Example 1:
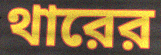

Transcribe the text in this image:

থারের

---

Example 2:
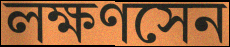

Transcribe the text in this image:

লক্ষণসেন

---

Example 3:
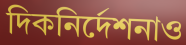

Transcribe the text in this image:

দিকনির্দেশনাও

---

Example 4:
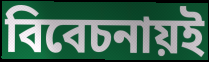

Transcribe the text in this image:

বিবেচনায়ই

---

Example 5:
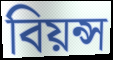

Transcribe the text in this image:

বিয়ন্স